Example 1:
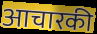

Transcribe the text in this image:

आचारकी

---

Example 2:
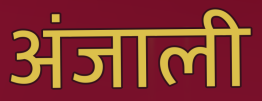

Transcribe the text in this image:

अंजाली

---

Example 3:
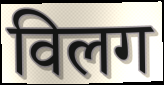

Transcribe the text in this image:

विलग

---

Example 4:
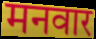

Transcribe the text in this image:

मनवार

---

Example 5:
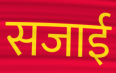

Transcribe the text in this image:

सजाई